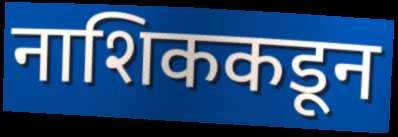
नाशिककडून